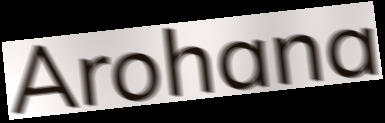
Arohana